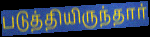
படுத்தியிருந்தார்